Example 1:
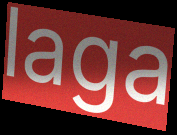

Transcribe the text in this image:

laga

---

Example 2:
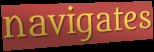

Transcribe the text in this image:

navigates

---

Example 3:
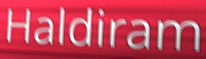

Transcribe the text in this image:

Haldiram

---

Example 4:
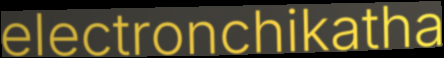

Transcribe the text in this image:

electronchikatha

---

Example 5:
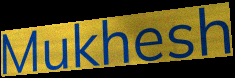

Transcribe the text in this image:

Mukhesh